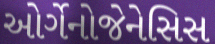
ઓર્ગેનોજેનેસિસ